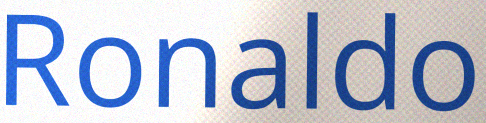
Ronaldo